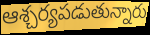
ఆశ్చర్యపడుతున్నారు